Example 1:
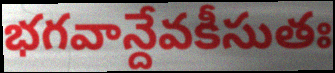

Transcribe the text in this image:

భగవాన్దేవకీసుతః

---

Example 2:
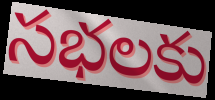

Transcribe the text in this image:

సభలకు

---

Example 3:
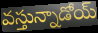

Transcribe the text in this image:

వస్తున్నాడోయ్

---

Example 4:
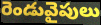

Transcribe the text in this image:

రెండువైపులు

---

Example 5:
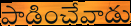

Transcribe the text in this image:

పాడించేవాడు